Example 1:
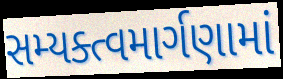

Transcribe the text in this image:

સમ્યક્ત્વમાર્ગણામાં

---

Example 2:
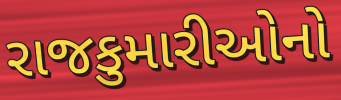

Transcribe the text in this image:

રાજકુમારીઓનો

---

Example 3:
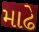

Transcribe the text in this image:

માઢે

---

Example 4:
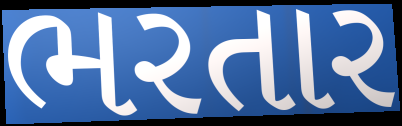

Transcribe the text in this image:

ભરતાર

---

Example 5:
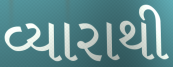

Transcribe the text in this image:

વ્યારાથી